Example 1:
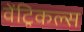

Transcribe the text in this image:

वेंट्रिकल्स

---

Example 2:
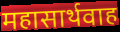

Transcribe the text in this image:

महासार्थवाह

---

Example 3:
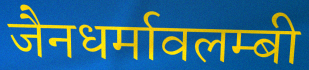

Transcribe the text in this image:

जैनधर्मावलम्बी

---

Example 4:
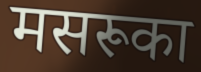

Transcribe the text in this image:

मसरूका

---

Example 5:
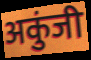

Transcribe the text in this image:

अकुंजी